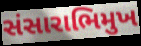
સંસારાભિમુખ